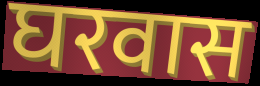
घरवास